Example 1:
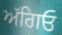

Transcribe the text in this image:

ਅੱਗਿਓ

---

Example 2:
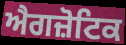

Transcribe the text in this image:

ਐਗਜ਼ੋਟਿਕ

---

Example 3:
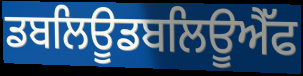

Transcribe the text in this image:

ਡਬਲਿਊਡਬਲਿਊਐੱਫ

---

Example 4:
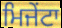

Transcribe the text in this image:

ਮਿਜੇਂਟਾ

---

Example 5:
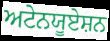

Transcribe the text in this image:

ਅਟੇਨਯੂਏਸ਼ਨ